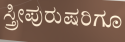
ಸ್ತ್ರೀಪುರುಷರಿಗೂ